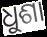
ଧୁଶା